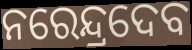
ନରେନ୍ଦ୍ରଦେବ